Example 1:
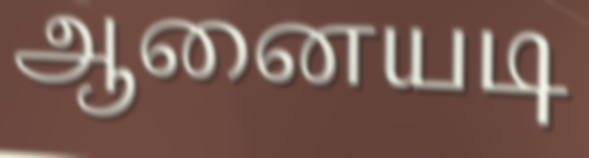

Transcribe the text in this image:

ஆனையடி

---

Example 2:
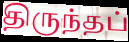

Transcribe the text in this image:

திருந்தப்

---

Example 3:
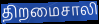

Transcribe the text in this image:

திறமைசாலி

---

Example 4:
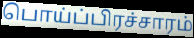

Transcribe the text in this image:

பொய்ப்பிரச்சாரம்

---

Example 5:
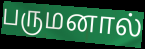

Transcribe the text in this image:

பருமனால்